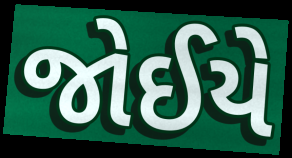
જોઈયે